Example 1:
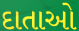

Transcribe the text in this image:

દાતાઓ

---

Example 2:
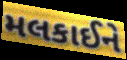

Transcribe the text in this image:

મલકાઈને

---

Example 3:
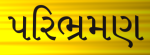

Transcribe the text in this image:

પરિભ્રમણ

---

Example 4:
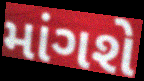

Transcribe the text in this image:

માંગશે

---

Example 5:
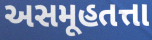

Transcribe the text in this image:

અસમૂહતત્તા